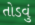
તોડવું